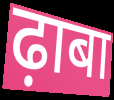
ढ़ाबा